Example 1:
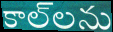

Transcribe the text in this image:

కాల్‌లను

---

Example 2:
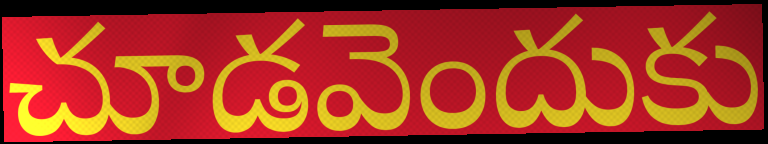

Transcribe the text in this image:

చూడవెందుకు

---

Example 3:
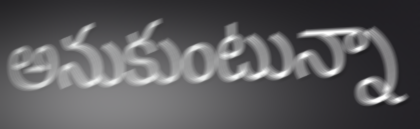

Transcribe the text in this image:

అనుకుంటున్నా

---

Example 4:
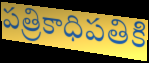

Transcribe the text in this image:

పత్రికాధిపతికి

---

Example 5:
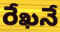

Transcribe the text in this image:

రేఖనే